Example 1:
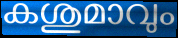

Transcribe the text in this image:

കശുമാവും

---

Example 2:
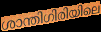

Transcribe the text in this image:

ശാന്തിഗിരിയിലെ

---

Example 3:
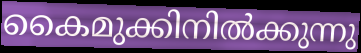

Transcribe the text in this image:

കൈമുക്കിനിൽക്കുന്നു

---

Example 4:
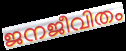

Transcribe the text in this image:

ജനജീവിതം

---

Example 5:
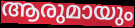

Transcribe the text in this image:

ആരുമായും